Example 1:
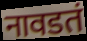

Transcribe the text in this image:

नावडतं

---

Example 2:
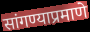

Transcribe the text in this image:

सांगण्याप्रमाणे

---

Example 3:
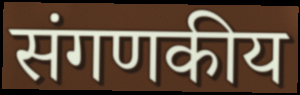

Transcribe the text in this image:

संगणकीय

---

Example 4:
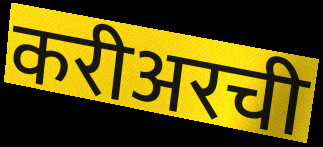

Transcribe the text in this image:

करीअरची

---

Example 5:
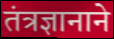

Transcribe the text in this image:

तंत्रज्ञानाने